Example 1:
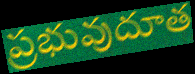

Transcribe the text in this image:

ప్రభువుదూత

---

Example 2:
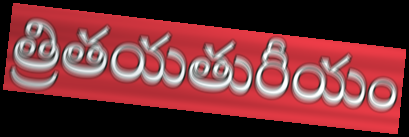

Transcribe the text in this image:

త్రితయతురీయం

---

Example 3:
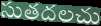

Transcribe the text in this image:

సుతదలచు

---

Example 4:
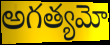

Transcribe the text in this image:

అగత్యమో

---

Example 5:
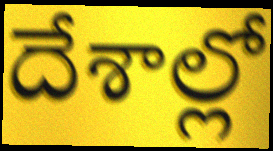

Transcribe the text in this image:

దేశాల్లో